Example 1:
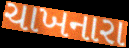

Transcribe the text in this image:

ચાખનારા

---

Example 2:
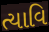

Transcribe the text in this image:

ત્યાવિ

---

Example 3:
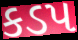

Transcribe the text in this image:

કડપ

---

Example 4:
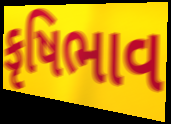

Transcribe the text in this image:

કૃષિભાવ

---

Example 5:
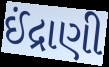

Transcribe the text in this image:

ઈંદ્રાણી